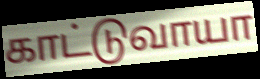
காட்டுவாயா